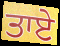
ਤਾਏ